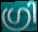
ഗ്രി